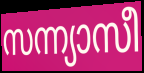
സന്ന്യാസീ